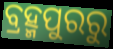
ବ୍ରହ୍ମପୁରରୁ